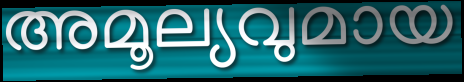
അമൂല്യവുമായ